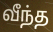
வீந்த